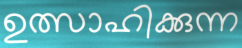
ഉത്സാഹിക്കുന്ന